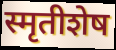
स्मृतीशेष